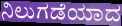
ನಿಲುಗಡೆಯಾದ